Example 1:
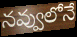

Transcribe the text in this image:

నవ్వులోనే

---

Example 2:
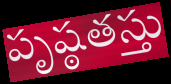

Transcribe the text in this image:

పృష్ఠతస్తు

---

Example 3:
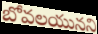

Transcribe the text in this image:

బోవలయునని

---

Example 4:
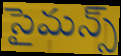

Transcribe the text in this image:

సైమన్స్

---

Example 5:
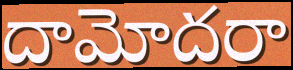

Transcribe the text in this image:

దామోదరా